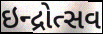
ઇન્દ્રોત્સવ